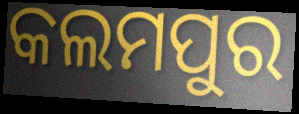
କଲମପୁର